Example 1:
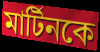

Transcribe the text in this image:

মার্টিনকে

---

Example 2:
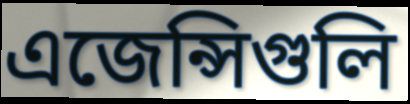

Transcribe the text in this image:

এজেন্সিগুলি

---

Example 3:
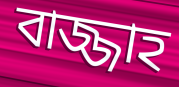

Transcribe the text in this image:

বাজ্জাহ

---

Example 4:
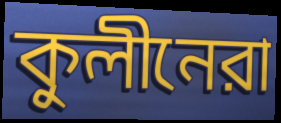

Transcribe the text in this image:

কুলীনেরা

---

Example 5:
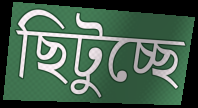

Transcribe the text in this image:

ছিটুচ্ছে